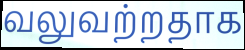
வலுவற்றதாக